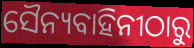
ସୈନ୍ୟବାହିନୀଠାରୁ